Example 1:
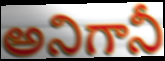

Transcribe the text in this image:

అనిగానీ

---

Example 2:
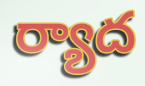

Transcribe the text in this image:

ర్యాద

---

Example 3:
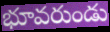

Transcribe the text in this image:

భూవరుండు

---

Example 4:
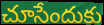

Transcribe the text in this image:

చూసేందుకు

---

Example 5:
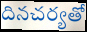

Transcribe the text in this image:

దినచర్యతో